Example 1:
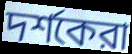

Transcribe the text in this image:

দর্শকেরা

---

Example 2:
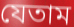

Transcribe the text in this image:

যেতাম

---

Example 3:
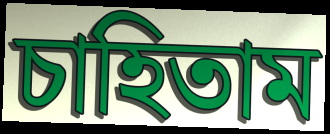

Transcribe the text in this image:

চাহিতাম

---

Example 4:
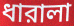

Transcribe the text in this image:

ধারালা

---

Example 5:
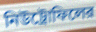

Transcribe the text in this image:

নিউট্রোফিলের